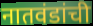
नातवंडांची